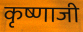
कृष्णाजी